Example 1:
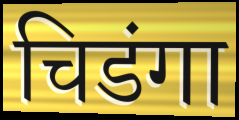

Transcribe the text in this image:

चिडंगा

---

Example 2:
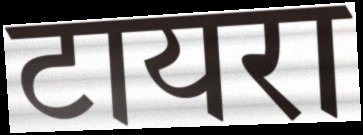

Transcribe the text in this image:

टायरा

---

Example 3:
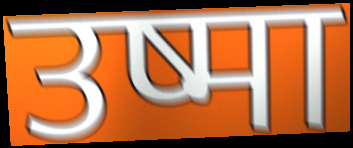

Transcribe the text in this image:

उष्मा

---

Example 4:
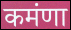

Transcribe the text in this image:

कमंणा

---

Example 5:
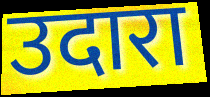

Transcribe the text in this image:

उदारा